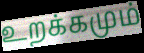
உறக்கமும்